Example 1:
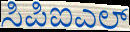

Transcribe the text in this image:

ಸಿಪಿಐಎಲ್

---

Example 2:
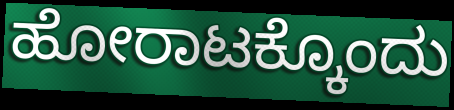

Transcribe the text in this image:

ಹೋರಾಟಕ್ಕೊಂದು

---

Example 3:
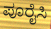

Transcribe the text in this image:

ಪೂರೈಸಿ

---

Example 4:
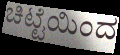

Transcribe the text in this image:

ಚಿಟ್ಟೆಯಿಂದ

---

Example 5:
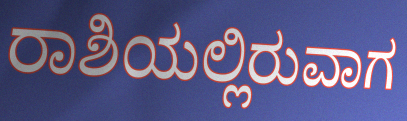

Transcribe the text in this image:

ರಾಶಿಯಲ್ಲಿರುವಾಗ